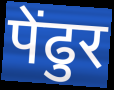
पेंढुर